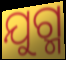
ଯୁଗ୍ମ